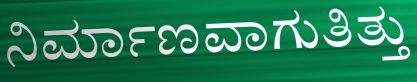
ನಿರ್ಮಾಣವಾಗುತಿತ್ತು